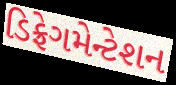
ડિફ્રેગમેન્ટેશન